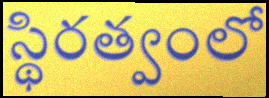
స్థిరత్వంలో